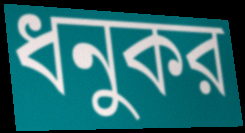
ধনুকর